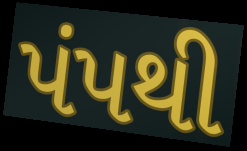
પંપથી